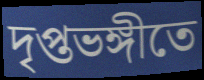
দৃপ্তভঙ্গীতে